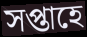
সপ্তাহে